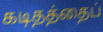
கடிதத்தைப்